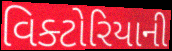
વિક્ટોરિયાની